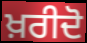
ਖ਼ਰੀਦੋ